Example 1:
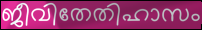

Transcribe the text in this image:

ജീവിതേതിഹാസം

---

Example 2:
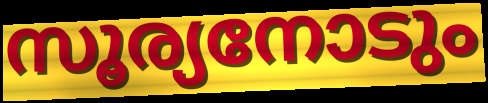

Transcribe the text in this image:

സൂര്യനോടും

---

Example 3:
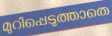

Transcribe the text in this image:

മുറിപ്പെടുത്താതെ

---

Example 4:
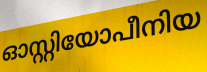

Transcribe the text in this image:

ഓസ്റ്റിയോപീനിയ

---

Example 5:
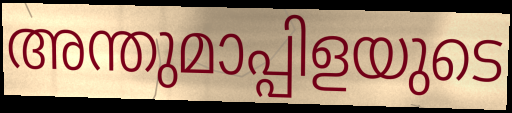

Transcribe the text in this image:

അന്തുമാപ്പിളയുടെ